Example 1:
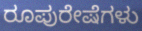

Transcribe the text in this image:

ರೂಪುರೇಷೆಗಳು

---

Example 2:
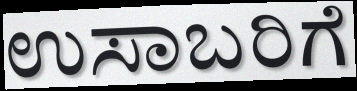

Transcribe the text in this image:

ಉಸಾಬರಿಗೆ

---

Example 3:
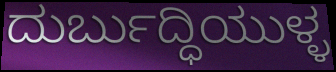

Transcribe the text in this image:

ದುರ್ಬುದ್ಧಿಯುಳ್ಳ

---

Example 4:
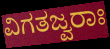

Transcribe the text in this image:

ವಿಗತಜ್ವರಾಃ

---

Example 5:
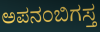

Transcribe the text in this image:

ಅಪನಂಬಿಗಸ್ತ